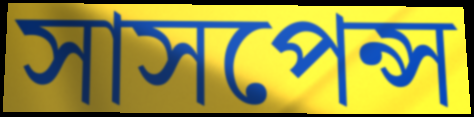
সাসপেন্স